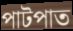
পাটপাত